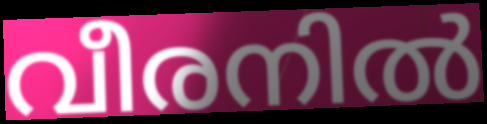
വീരനിൽ